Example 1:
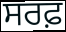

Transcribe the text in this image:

ਸਰਫ਼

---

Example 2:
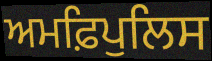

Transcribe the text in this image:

ਅਮਫ਼ਿਪੁਲਿਸ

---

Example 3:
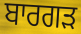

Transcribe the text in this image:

ਬਾਰਗੜ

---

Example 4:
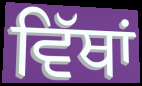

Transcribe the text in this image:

ਵਿੱਥਾਂ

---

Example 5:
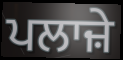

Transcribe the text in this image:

ਪਲਾਜ਼ੇ